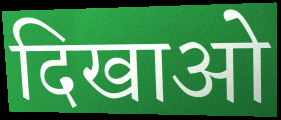
दिखाओ